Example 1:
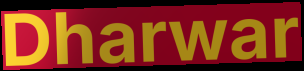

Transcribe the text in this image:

Dharwar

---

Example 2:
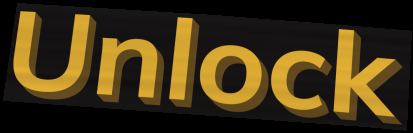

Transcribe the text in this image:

Unlock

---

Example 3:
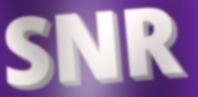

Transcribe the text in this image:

SNR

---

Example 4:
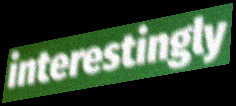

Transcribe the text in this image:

interestingly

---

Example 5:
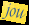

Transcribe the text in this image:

jou